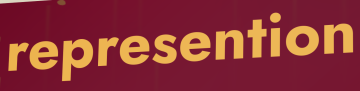
represention